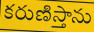
కరుణిస్తాను